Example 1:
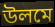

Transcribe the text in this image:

উলমে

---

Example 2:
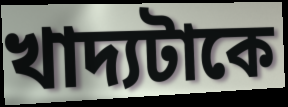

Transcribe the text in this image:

খাদ্যটাকে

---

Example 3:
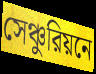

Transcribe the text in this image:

সেঞ্চুরিয়নে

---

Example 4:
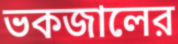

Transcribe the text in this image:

ভকজালের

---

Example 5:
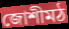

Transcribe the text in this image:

জোশীমঠ